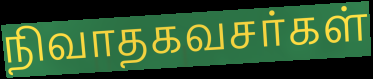
நிவாதகவசர்கள்